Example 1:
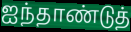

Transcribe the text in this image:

ஐந்தாண்டுத்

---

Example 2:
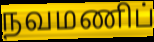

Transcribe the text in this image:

நவமணிப்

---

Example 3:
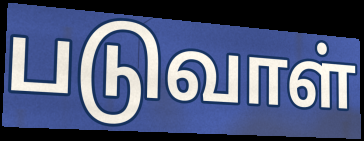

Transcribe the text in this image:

படுவாள்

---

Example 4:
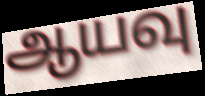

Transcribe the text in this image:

ஆயவு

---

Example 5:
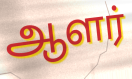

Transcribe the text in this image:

ஆளர்